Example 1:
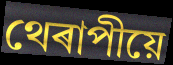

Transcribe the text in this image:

থেৰাপীয়ে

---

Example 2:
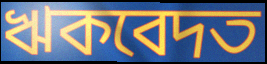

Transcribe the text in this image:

ঋকবেদত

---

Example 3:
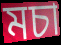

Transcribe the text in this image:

মচা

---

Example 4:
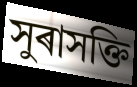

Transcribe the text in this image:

সুৰাসক্তি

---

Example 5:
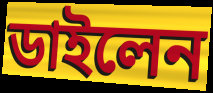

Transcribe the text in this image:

ডাইলেন